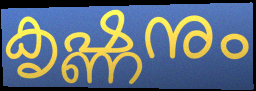
കൃഷ്ണനും